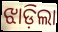
ଝାଡ଼ିଲା